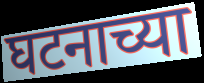
घटनाच्या